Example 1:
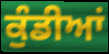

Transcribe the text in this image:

ਕੁੰਡੀਆਂ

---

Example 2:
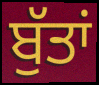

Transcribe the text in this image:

ਬੁੱਤਾਂ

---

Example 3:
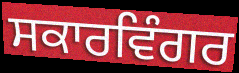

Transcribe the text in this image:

ਸਕਾਰਵਿੰਗਰ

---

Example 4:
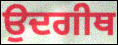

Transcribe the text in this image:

ਉਦਗੀਥ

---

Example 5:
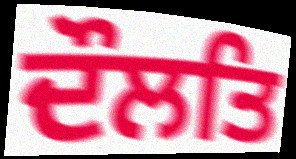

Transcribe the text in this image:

ਦੌਲਤਿ